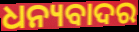
ଧନ୍ୟବାଦର